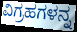
ವಿಗ್ರಹಗಳನ್ನ